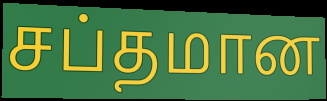
சப்தமான